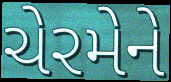
ચેરમેને